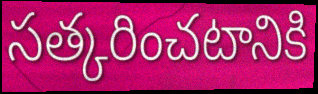
సత్కరించటానికి